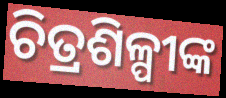
ଚିତ୍ରଶିଳ୍ପୀଙ୍କ